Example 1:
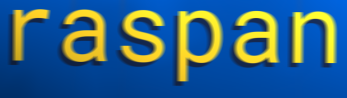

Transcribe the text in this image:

raspan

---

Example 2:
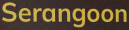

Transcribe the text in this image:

Serangoon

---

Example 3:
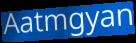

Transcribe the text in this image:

Aatmgyan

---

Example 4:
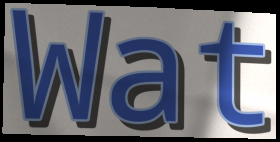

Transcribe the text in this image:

Wat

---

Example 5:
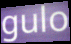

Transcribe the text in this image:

gulo